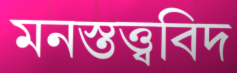
মনস্তত্ত্ববিদ